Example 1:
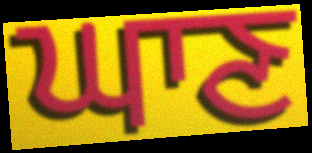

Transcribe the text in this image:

ਘਾਣ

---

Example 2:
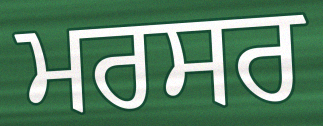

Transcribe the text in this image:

ਮਰਸਰ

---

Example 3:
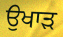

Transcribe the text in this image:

ਉਖਾੜ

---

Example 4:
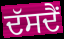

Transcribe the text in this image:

ਦੱਸਦੈਂ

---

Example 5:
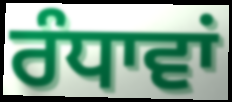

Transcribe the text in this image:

ਰੰਧਾਵਾਂ